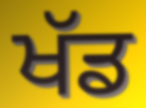
ਖੱਡ